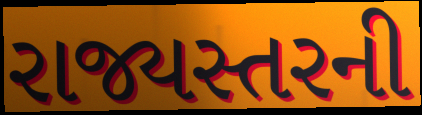
રાજ્યસ્તરની